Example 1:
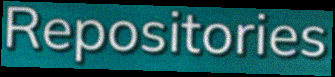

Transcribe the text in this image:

Repositories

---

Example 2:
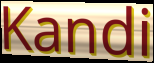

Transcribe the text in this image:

Kandi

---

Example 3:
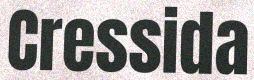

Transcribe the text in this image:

Cressida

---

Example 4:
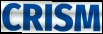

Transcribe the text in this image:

CRISM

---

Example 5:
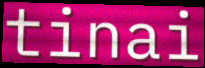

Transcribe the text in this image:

tinai